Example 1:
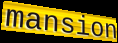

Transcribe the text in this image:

mansion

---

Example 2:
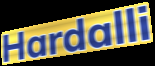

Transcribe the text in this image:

Hardalli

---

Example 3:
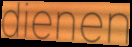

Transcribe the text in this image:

dienen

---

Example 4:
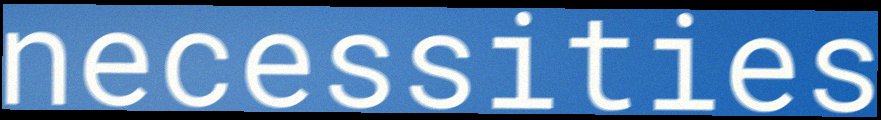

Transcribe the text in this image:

necessities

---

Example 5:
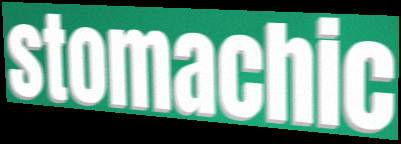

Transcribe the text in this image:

stomachic